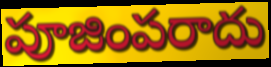
పూజింపరాదు